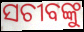
ସଚୀବଙ୍କୁ